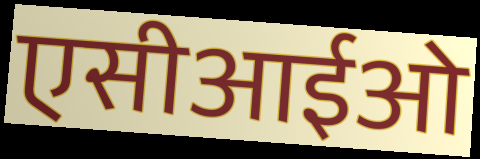
एसीआईओ